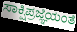
ಸಾಕ್ಷಿಪ್ರಜ್ಞೆಯಂತೆ